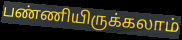
பண்ணியிருக்கலாம்